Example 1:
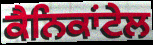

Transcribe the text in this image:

ਕੈਨਿਕਾਂਟੇਲ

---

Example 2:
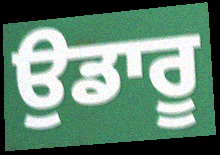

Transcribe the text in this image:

ਉਡਾਰੂ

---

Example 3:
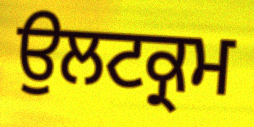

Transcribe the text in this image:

ਉਲਟਕ੍ਰਮ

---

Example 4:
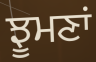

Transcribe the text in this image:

ਝੂਮਣਾਂ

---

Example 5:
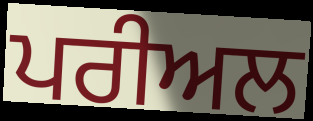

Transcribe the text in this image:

ਪਰੀਅਲ